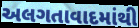
અલગતાવાદમાંથી